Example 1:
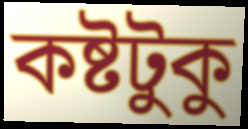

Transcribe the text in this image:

কষ্টটুকু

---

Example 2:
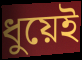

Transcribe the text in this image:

ধুয়েই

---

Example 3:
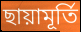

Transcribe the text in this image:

ছায়ামূর্তি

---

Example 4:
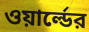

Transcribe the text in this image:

ওয়ার্ল্ডের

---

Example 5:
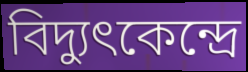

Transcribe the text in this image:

বিদ্যুৎকেন্দ্রে